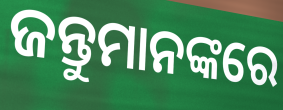
ଜନ୍ତୁମାନଙ୍କରେ